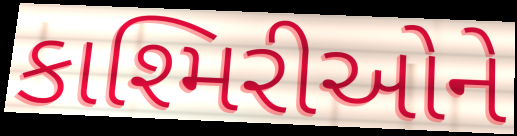
કાશ્મિરીઓને